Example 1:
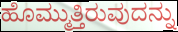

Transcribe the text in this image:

ಹೊಮ್ಮುತ್ತಿರುವುದನ್ನು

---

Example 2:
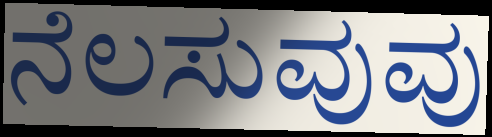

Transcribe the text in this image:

ನೆಲಸುವುವು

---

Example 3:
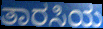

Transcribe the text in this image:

ತಾರಸಿಯ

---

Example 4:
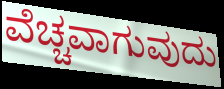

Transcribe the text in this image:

ವೆಚ್ಚವಾಗುವುದು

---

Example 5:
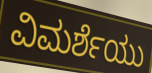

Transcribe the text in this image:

ವಿಮರ್ಶೆಯು